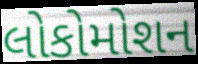
લોકોમોશન